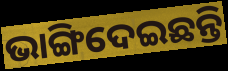
ଭାଙ୍ଗିଦେଇଛନ୍ତି